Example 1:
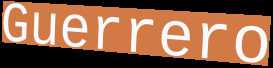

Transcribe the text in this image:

Guerrero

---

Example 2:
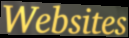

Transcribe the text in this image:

Websites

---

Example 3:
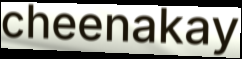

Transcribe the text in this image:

cheenakay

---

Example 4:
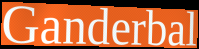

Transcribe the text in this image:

Ganderbal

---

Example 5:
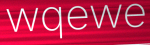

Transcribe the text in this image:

wqewe